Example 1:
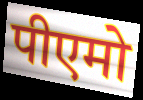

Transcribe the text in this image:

पीएमो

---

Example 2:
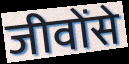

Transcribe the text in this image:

जीवोंसे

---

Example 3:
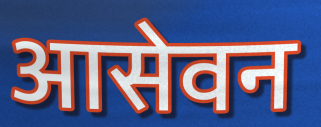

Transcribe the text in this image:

आसेवन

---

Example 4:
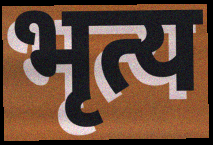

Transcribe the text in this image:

भृत्य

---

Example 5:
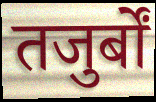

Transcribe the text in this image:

तजुर्बों